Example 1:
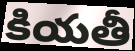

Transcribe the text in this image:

కియతీ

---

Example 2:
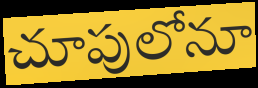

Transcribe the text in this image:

చూపులోనూ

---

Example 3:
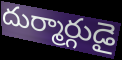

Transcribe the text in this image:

దుర్మార్గుడై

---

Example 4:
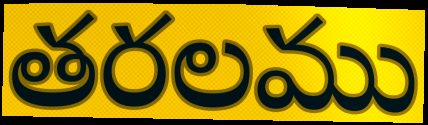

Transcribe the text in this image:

తరలము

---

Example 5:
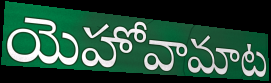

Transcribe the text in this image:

యెహోవామాట